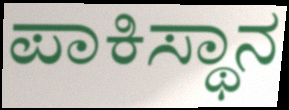
ಪಾಕಿಸ್ಥಾನ